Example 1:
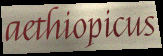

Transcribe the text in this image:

aethiopicus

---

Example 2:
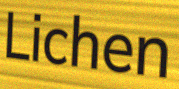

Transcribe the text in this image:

Lichen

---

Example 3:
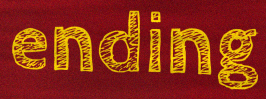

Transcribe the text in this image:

ending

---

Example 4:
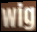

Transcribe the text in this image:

wig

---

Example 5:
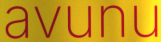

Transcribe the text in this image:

avunu